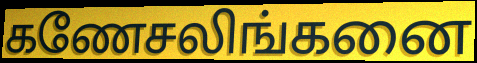
கணேசலிங்கனை